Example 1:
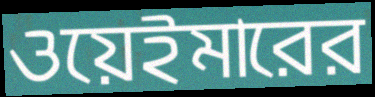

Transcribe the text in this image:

ওয়েইমারের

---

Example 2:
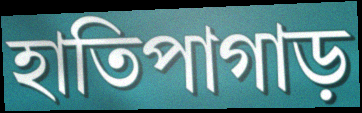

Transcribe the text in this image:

হাতিপাগাড়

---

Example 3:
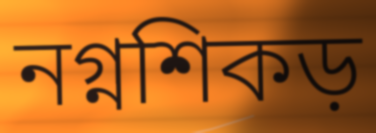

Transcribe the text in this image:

নগ্নশিকড়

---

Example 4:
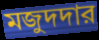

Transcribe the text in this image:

মজুদদার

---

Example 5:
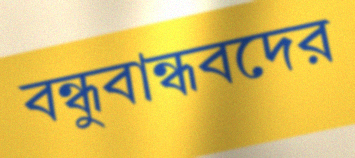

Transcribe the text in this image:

বন্ধুবান্ধবদের